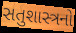
સતુશાસ્ત્રનો